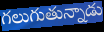
గలుగుతున్నాడు